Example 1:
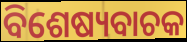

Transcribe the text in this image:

ବିଶେଷ୍ୟବାଚକ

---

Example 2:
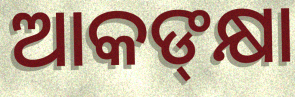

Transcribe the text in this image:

ଆକଙ୍‌କ୍ଷା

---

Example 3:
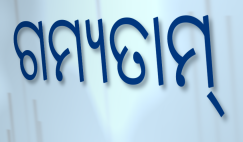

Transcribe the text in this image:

ଗମ୍ୟତାମ୍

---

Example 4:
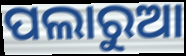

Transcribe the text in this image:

ପଲାରୁଆ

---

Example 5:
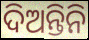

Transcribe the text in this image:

ଦିଅନ୍ତିନି